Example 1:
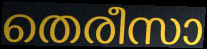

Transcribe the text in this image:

തെരീസാ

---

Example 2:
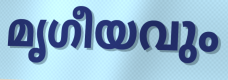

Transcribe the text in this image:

മൃഗീയവും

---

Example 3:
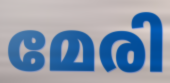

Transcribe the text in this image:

മേരി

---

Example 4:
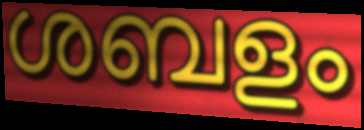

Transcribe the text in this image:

ശബളം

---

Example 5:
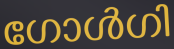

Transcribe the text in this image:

ഗോൾഗി